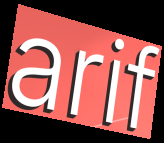
arif